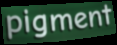
pigment